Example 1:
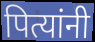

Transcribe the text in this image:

पित्यांनी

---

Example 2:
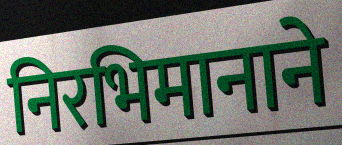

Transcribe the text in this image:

निरभिमानाने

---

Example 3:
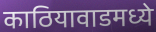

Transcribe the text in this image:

काठियावाडमध्ये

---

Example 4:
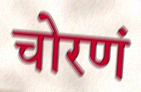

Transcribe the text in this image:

चोरणं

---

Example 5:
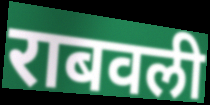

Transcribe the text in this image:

राबवली